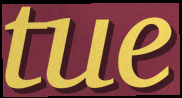
tue